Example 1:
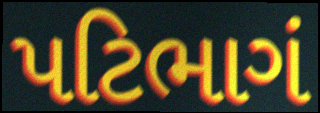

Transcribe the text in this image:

પટિભાગં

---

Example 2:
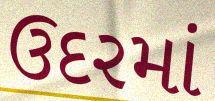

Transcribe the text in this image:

ઉદરમાં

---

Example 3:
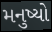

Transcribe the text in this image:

મનુષ્યો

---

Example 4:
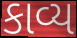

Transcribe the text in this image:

કાવ્ય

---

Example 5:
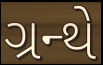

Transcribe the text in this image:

ગ્રન્થે